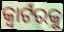
କ୍ୱାର୍ଟରକୁ